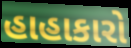
હાહાકારો